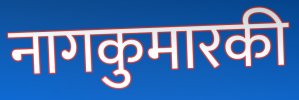
नागकुमारकी